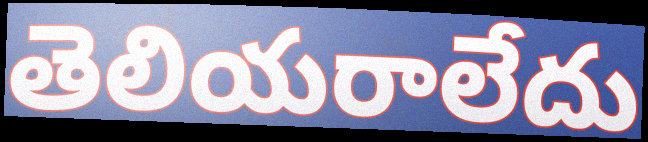
తెలియరాలేదు